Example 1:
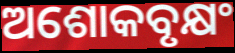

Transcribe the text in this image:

ଅଶୋକବୃକ୍ଷଂ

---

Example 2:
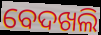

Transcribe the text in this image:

ବେଦଖଲି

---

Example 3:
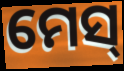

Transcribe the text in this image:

ମେସ୍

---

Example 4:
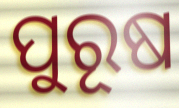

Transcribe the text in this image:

ପୁରୂଷ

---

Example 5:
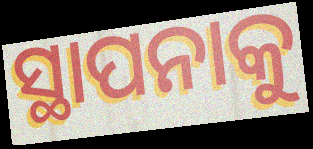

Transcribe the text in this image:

ସ୍ଥାପନାକୁ